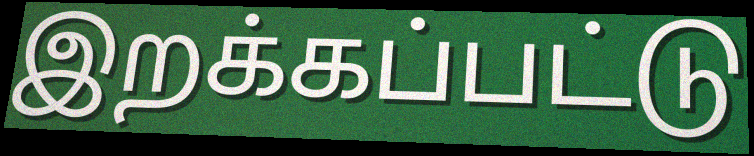
இறக்கப்பட்டு